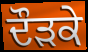
ਦੌੜਕੇ